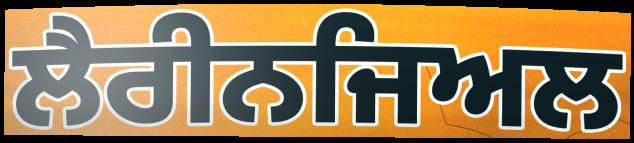
ਲੈਰੀਨਜਿਅਲ